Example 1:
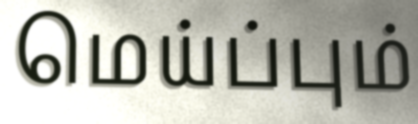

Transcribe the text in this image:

மெய்ப்பும்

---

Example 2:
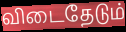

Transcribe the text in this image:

விடைதேடும்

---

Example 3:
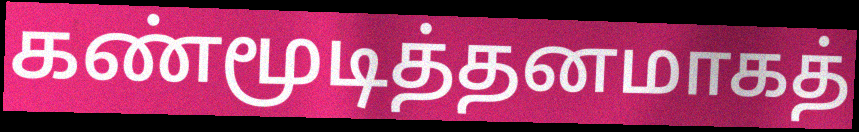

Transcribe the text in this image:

கண்மூடித்தனமாகத்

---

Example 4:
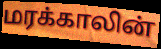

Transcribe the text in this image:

மரக்காலின்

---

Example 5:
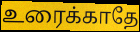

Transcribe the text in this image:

உரைக்காதே